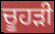
ਚੂਹੜੀ